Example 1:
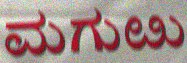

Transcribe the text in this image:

ಮಗುೞು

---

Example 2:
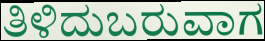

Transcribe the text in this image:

ತಿಳಿದುಬರುವಾಗ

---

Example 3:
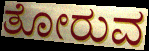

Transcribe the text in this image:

ತೋರುವ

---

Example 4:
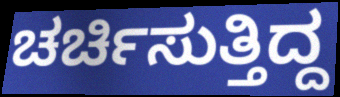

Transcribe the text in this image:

ಚರ್ಚಿಸುತ್ತಿದ್ದ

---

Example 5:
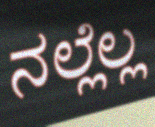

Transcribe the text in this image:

ನಲ್ಲೆಲ್ಲ